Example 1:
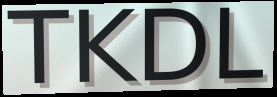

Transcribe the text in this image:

TKDL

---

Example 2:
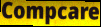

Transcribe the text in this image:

Compcare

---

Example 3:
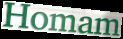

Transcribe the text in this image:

Homam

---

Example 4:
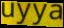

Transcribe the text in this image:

uyya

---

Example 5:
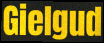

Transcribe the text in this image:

Gielgud